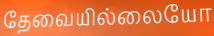
தேவையில்லையோ